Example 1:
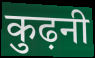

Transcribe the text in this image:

कुढ़नी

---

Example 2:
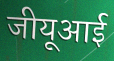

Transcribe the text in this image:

जीयूआई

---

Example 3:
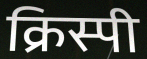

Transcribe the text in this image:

क्रिस्पी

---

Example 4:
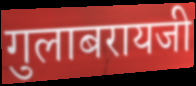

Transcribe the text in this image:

गुलाबरायजी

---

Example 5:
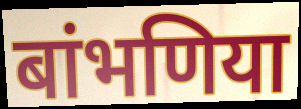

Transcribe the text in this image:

बांभणिया